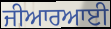
ਜੀਆਰਆਈ